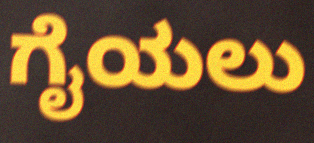
ಗೈಯಲು